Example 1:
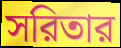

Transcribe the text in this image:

সরিতার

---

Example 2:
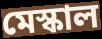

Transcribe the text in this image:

মেস্কাল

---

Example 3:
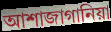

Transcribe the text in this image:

আশাজাগানিয়া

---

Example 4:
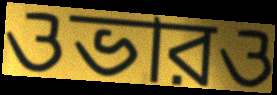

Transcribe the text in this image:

ওভারও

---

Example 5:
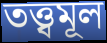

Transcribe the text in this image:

তত্ত্বমূল